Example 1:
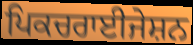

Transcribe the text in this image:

ਪਿਕਚਰਾਈਜੇਸ਼ਨ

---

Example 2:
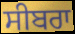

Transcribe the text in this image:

ਸੀਬਰਾ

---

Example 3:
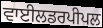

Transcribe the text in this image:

ਵਾਈਲਡਰਪੀਪਲ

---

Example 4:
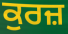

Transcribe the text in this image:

ਕੁਰਜ਼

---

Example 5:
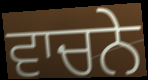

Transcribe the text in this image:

ਵਾਚਨੇ